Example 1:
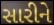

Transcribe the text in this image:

સારીને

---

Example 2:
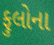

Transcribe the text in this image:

ફુલોના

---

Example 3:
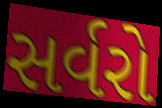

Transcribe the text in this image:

સર્વરો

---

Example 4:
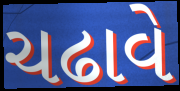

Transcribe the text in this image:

ચઢાવે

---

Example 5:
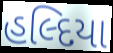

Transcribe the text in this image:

હલ્દિયા